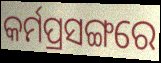
କର୍ମପ୍ରସଙ୍ଗରେ